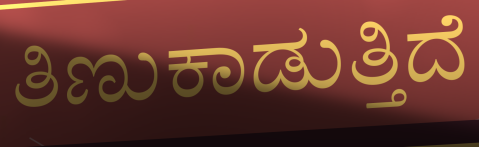
ತಿಣುಕಾಡುತ್ತಿದೆ